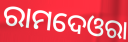
ରାମଦେଓରା